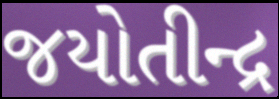
જયોતીન્દ્ર